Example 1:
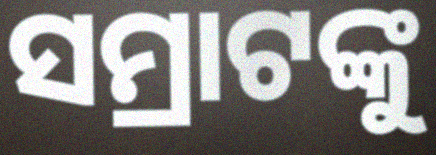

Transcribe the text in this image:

ସମ୍ରାଟଙ୍କୁ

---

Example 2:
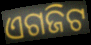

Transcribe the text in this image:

ଏଗଜିଟ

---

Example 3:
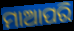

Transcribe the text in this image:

ମାଆପରି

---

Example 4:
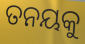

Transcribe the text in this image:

ତନୟକୁ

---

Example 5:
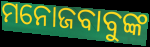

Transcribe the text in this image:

ମନୋଜବାବୁଙ୍କ